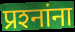
प्रश्‍नांना